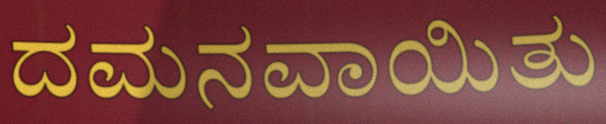
ದಮನವಾಯಿತು